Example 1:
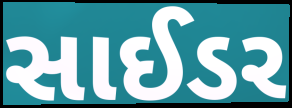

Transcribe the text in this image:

સાઈડર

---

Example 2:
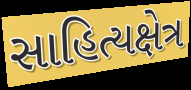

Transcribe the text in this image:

સાહિત્યક્ષેત્ર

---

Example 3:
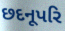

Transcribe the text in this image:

છદનૂપરિ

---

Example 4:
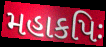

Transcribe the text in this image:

મહાકપિઃ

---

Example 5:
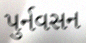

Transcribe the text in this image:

પુર્નવસન